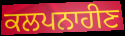
ਕਲਪਨਾਹੀਣ